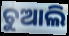
ଚୁଆଲି